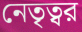
নেতৃত্বর